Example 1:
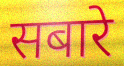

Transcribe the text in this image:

सबारे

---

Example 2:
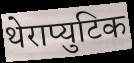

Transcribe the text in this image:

थेराप्युटिक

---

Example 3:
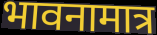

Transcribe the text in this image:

भावनामात्र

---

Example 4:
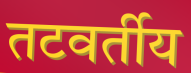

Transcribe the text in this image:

तटवर्तीय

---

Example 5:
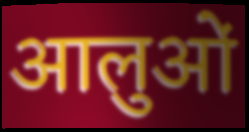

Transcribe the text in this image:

आलुओं